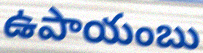
ఉపాయంబు